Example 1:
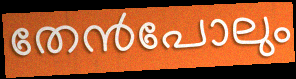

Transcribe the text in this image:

തേൻപോലും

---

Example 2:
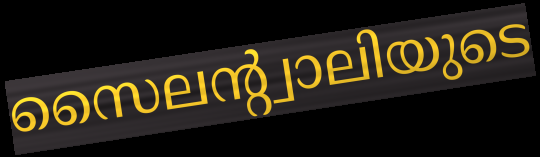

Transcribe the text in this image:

സൈലന്റ്വാലിയുടെ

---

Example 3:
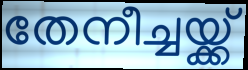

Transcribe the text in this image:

തേനീച്ചയ്ക്ക്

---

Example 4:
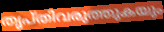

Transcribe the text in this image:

തൃപ്തിവരുത്തുകയും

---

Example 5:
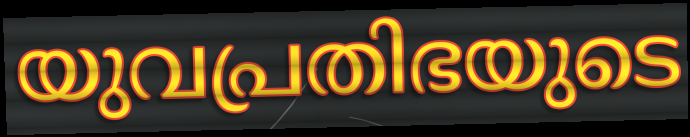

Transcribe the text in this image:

യുവപ്രതിഭയുടെ